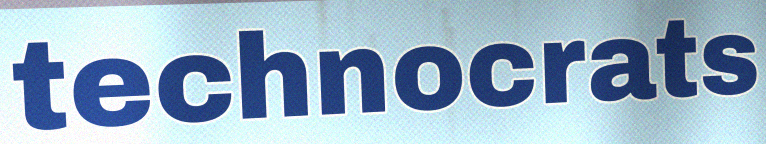
technocrats